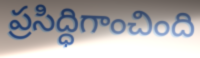
ప్రసిద్ధిగాంచింది